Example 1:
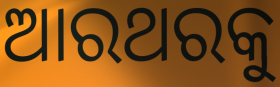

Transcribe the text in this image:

ଆରଥରକୁ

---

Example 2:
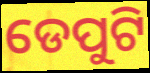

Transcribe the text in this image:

ଡେପୁଟି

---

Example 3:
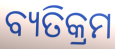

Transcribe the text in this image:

ବ୍ୟତିକ୍ରମ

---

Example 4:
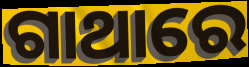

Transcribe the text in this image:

ଗାଥାରେ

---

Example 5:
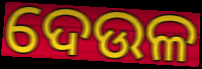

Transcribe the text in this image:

ଦେଉଳ